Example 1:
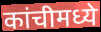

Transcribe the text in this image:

कांचीमध्ये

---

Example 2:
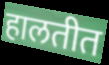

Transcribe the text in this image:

हालतीत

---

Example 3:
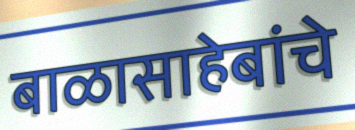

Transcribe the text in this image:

बाळासाहेबांचे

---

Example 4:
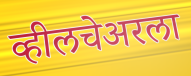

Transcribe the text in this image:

व्हीलचेअरला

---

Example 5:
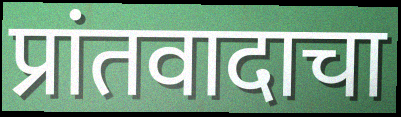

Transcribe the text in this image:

प्रांतवादाचा